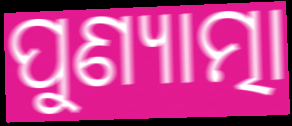
ପୁଣ୍ୟାତ୍ମା